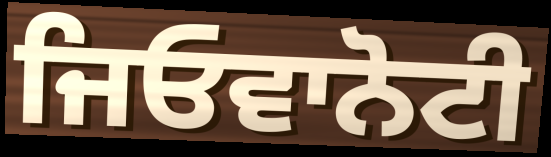
ਜਿਓਵਾਨੋਟੀ